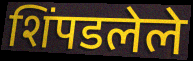
शिंपडलेले